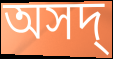
অসদ্